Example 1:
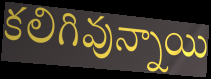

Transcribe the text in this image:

కలిగివున్నాయి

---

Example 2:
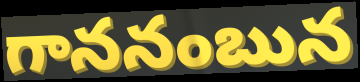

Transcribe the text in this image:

గాననంబున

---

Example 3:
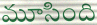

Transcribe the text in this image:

మూసింది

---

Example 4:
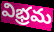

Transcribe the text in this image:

విభ్రమ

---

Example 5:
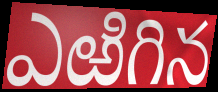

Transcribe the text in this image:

ఎఱిగిన